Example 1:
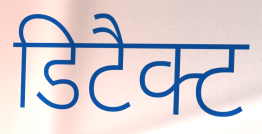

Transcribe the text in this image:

डिटैक्ट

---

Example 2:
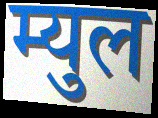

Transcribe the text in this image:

म्युल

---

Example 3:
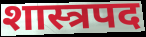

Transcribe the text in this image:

शास्त्रपद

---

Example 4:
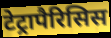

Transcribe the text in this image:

टेट्रापैरिसिस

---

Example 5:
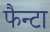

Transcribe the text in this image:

फैन्टा